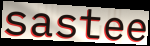
sastee